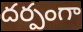
దర్పంగా